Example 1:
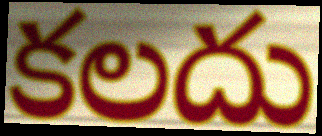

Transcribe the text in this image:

కలదు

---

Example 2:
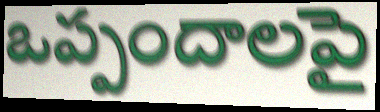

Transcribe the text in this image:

ఒప్పందాలపై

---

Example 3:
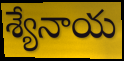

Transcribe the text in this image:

శ్యేనాయ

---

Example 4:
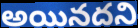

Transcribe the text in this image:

అయినదని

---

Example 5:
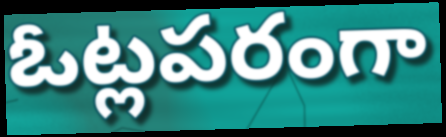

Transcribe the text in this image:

ఓట్లపరంగా